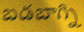
బడబాగ్ని